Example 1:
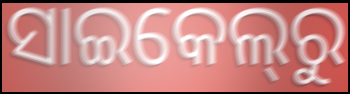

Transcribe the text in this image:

ସାଇକେଲ୍‌ରୁ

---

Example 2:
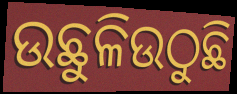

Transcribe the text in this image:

ଉଛୁଳିଉଠୁଛି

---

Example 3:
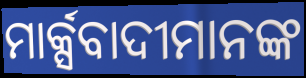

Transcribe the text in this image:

ମାର୍କ୍ସବାଦୀମାନଙ୍କ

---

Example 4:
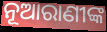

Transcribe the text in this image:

ନୂଆରାଣୀଙ୍କ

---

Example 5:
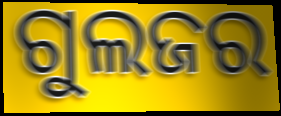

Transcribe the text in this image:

ଗୁଲଜର